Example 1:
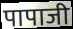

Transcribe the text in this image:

पापाजी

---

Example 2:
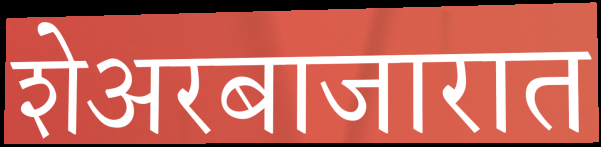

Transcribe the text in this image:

शेअरबाजारात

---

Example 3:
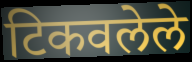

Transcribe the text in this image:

टिकवलेले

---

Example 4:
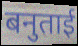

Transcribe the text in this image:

बनुताई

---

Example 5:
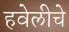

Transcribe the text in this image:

हवेलीचे